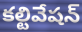
కల్టివేషన్